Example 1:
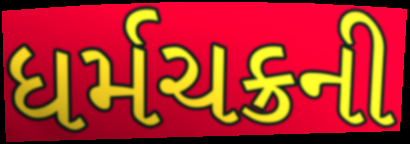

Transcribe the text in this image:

ધર્મચક્રની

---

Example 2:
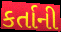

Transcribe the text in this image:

કર્તાની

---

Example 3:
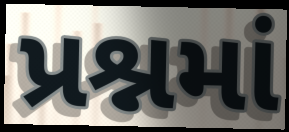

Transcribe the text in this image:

પ્રશ્નમાં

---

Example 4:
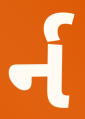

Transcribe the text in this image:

ર્ન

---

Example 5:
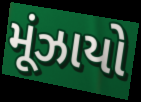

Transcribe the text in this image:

મૂંઝાયો